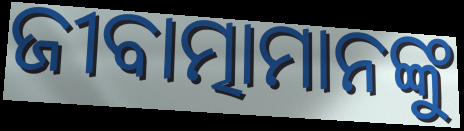
ଜୀବାତ୍ମାମାନଙ୍କୁ